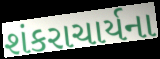
શંકરાચાર્યના